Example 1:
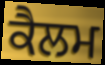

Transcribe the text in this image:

ਕੈਲਮ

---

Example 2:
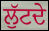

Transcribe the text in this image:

ਲੁੱਟਦੇ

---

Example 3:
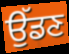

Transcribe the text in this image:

ਉੱਡਣ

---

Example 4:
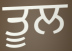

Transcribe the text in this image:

ਤੂਲ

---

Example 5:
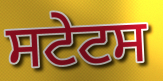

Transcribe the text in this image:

ਸਟੇਟਸ